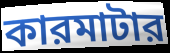
কারমাটার